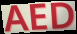
AED